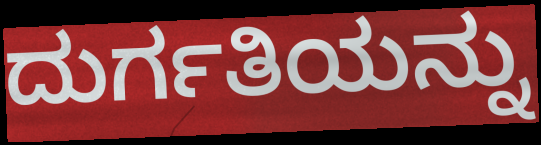
ದುರ್ಗತಿಯನ್ನು